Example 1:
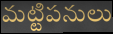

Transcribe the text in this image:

మట్టిపనులు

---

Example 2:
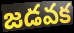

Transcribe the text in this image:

జడవక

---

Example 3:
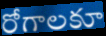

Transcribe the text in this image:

రోగాలకూ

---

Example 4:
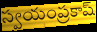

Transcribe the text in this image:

స్వయంప్రకాష్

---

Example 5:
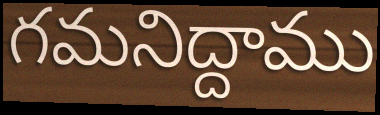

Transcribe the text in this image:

గమనిద్దాము